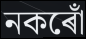
নকৰোঁ